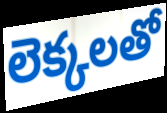
లెక్కలతో